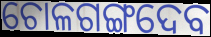
ଚୋଳଗଙ୍ଗଦେବ